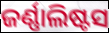
ଜର୍ଣ୍ଣାଲିଷ୍ଟସ